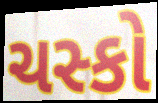
ચસ્કો